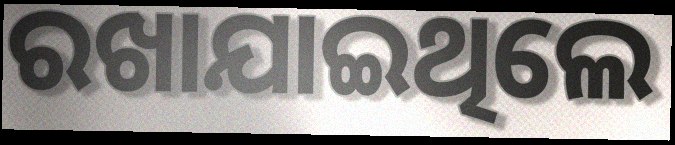
ରଖାଯାଇଥିଲେ